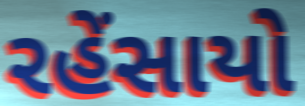
રહેંસાયો